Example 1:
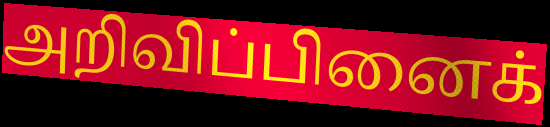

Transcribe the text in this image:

அறிவிப்பினைக்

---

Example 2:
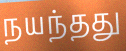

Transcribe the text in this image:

நயந்தது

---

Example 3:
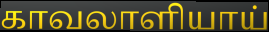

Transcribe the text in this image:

காவலாளியாய்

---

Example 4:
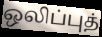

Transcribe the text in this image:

ஒலிப்புத்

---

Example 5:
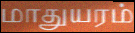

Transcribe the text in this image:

மாதுயரம்